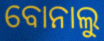
ବୋନାଲୁ